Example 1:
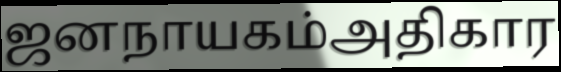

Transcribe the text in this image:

ஜனநாயகம்அதிகார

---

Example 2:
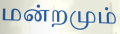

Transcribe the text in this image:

மன்றமும்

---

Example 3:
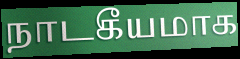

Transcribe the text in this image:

நாடகீயமாக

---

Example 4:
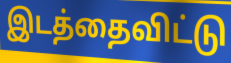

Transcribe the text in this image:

இடத்தைவிட்டு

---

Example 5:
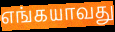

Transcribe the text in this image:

எங்கயாவது